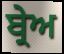
ਬ੍ਰੇਅ